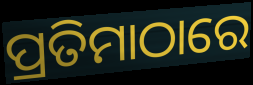
ପ୍ରତିମାଠାରେ